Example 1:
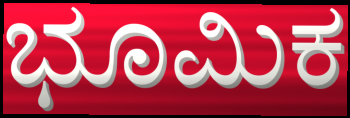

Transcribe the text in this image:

ಭೂಮಿಕ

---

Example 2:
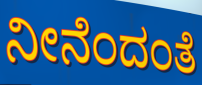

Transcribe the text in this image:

ನೀನೆಂದಂತೆ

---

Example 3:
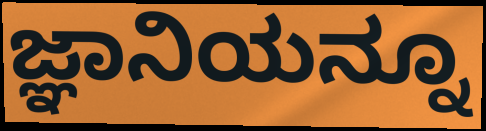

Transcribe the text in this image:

ಜ್ಞಾನಿಯನ್ನೂ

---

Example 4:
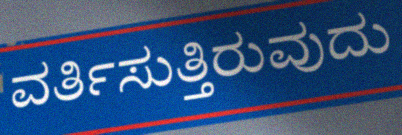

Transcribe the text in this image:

ವರ್ತಿಸುತ್ತಿರುವುದು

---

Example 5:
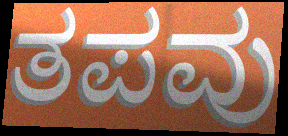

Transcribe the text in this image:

ತಪವು